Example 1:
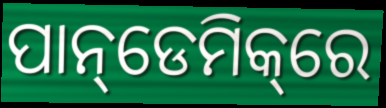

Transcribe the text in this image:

ପାନ୍‌ଡେମିକ୍‌ରେ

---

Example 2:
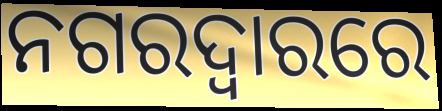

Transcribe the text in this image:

ନଗରଦ୍ୱାରରେ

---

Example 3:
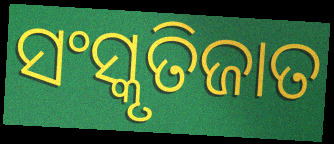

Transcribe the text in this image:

ସଂସ୍କୃତିଜାତ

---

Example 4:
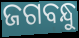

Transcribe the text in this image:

ଜଗବନ୍ଧୁ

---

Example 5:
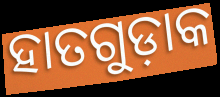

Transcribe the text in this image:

ହାତଗୁଡ଼ାକ